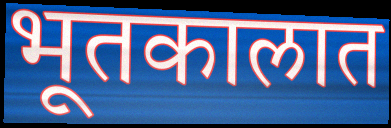
भूतकालात